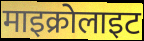
माइक्रोलाइट